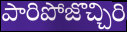
పారిపోజొచ్చిరి